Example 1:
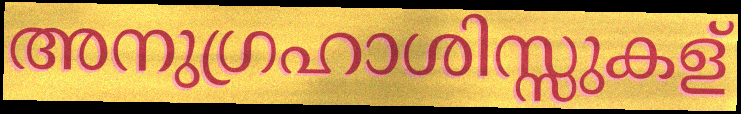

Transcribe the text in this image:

അനുഗ്രഹാശിസ്സുകള്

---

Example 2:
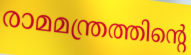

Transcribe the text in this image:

രാമമന്ത്രത്തിന്റെ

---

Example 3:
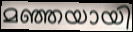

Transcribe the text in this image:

മഞ്ഞയായി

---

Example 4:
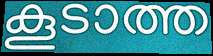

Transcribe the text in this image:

കൂടാത്ത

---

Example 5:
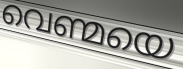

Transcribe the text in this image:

വെണ്മയെ